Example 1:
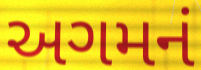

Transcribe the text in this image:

અગમનં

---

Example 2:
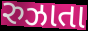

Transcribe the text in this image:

રુઝાતા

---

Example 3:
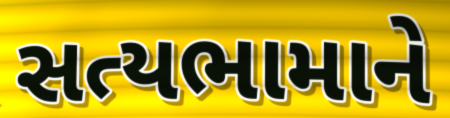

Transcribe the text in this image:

સત્યભામાને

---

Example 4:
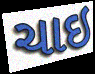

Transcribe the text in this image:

ચાઇ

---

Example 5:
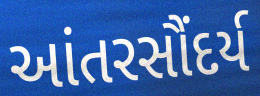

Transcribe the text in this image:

આંતરસૌંદર્ય